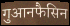
गुआनफैसिन